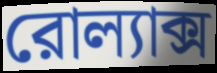
রোল্যাক্স